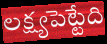
లక్ష్యపెట్టేది